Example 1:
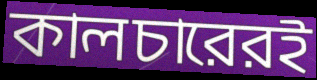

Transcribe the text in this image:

কালচারেরই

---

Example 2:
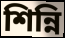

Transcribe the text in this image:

শিন্নি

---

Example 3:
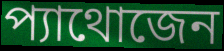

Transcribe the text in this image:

প্যাথোজেন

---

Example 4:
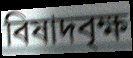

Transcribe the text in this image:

বিষাদবৃক্ষ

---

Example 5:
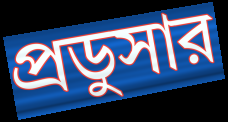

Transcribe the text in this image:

প্রডুসার